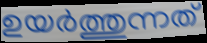
ഉയർത്തുന്നത്